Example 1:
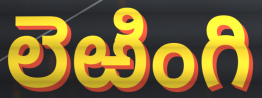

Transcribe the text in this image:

లెఱింగి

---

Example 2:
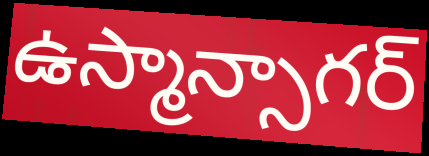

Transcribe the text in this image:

ఉస్మాన్సాగర్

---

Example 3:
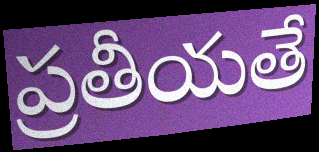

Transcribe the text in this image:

ప్రతీయతే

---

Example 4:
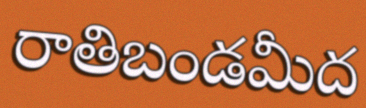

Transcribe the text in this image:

రాతిబండమీద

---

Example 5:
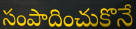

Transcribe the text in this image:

సంపాదించుకొనే